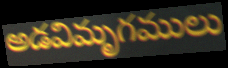
అడవిమృగములు